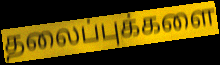
தலைப்புக்களை